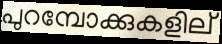
പുറമ്പോക്കുകളില്